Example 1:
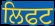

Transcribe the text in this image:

ਲਿਫਟ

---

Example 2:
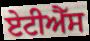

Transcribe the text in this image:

ਏਟੀਐੱਸ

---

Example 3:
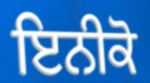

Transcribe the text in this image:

ਇਨੀਕੋ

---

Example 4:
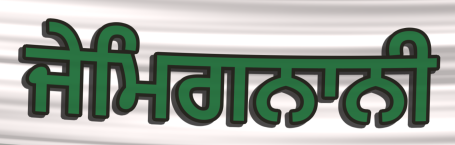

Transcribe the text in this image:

ਜੇਮਿਗਨਾਨੀ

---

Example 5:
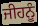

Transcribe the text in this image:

ਜੀਹਨੂੰ